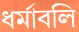
ধর্মাবলি